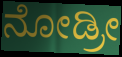
ನೋಡ್ರೀ